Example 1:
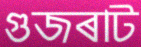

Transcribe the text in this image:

গুজৰাট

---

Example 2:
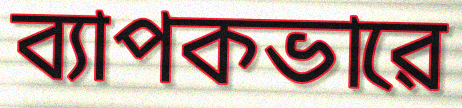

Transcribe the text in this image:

ব্যাপকভাৱে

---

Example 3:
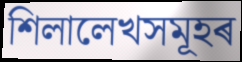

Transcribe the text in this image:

শিলালেখসমূহৰ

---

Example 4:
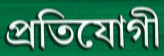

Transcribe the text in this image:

প্ৰতিযোগী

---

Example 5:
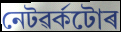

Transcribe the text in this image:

নেটৱৰ্কটোৰ